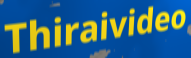
Thiraivideo